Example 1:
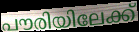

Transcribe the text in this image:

പൗരിയിലേക്ക്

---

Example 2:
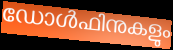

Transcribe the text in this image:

ഡോൾഫിനുകളും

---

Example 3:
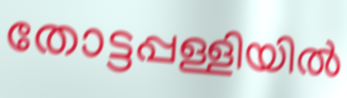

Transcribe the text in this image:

തോട്ടപ്പള്ളിയിൽ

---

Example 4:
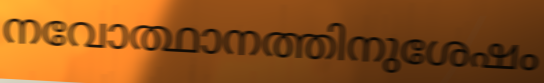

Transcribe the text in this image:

നവോത്ഥാനത്തിനുശേഷം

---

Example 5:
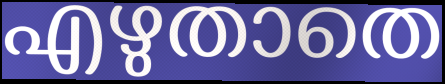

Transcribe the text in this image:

എഴുതാതെ